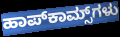
ಹಾಪ್‌ಕಾಮ್ಸ್‌ಗಳು